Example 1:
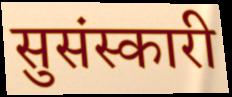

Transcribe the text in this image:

सुसंस्कारी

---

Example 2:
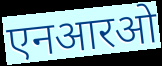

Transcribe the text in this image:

एनआरओ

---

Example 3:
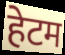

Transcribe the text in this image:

हेटम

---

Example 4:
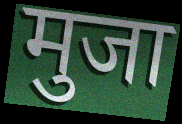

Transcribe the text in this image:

मुजा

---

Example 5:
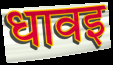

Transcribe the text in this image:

धावइ